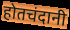
होतचंदानी